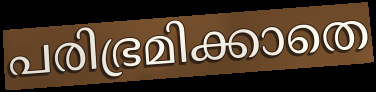
പരിഭ്രമിക്കാതെ